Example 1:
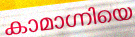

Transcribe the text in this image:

കാമാഗ്നിയെ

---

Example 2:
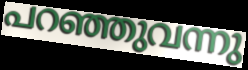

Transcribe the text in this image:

പറഞ്ഞുവന്നു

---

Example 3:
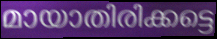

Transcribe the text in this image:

മായാതിരിക്കട്ടെ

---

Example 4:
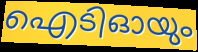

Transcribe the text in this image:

ഐടിഓയും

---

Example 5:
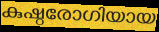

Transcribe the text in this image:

കുഷ്ഠരോഗിയായ